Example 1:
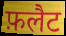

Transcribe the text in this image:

फ़लैट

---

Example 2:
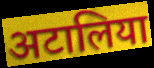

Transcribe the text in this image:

अटालिया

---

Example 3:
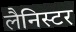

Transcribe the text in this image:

लैनिस्टर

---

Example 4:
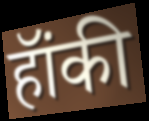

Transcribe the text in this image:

हॉंकी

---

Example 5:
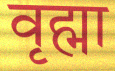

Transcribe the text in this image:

वृह्मा